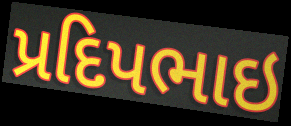
પ્રદિપભાઇ